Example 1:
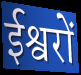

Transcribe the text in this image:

ईश्वरों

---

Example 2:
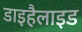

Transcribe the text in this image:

डाइहैलाइड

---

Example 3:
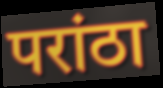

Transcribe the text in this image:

परांठा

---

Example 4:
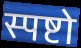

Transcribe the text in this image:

स्पष्टो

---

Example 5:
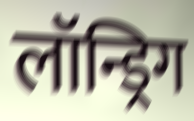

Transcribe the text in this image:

लॉन्ड्रिग